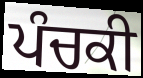
ਪੰਚਕੀ